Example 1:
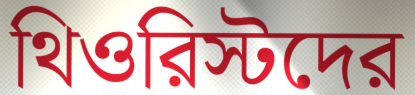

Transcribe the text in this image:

থিওরিস্টদের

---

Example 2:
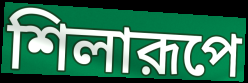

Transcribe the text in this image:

শিলারূপে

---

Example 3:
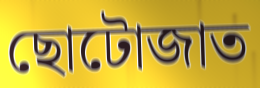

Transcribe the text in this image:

ছোটোজাত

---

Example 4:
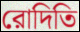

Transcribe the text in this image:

রোদিতি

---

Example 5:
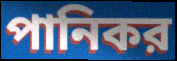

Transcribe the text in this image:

পানিকর